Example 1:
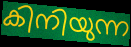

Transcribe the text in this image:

കിനിയുന്ന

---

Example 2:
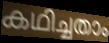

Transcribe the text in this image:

കഥിച്ചതാം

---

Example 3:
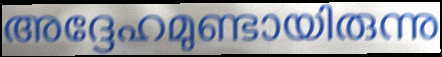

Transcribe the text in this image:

അദ്ദേഹമുണ്ടായിരുന്നു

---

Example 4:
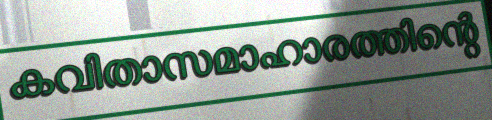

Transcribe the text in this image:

കവിതാസമാഹാരത്തിന്റെ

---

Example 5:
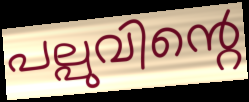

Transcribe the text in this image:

പല്പുവിന്റെ